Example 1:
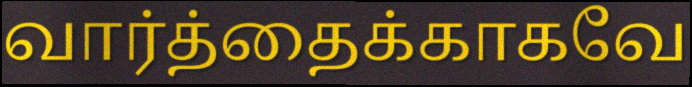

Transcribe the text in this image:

வார்த்தைக்காகவே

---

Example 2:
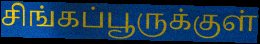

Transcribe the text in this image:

சிங்கப்பூருக்குள்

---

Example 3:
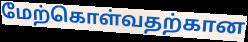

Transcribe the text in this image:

மேற்கொள்வதற்கான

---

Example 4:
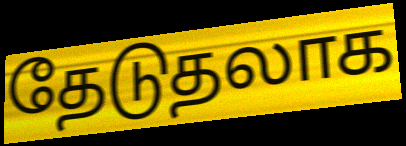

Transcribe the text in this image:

தேடுதலாக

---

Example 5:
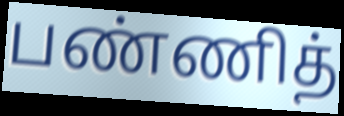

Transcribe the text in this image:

பண்ணித்